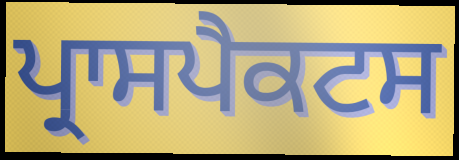
ਪ੍ਰਾਸਪੈਕਟਸ